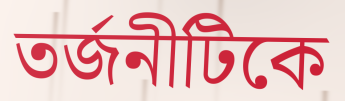
তর্জনীটিকে